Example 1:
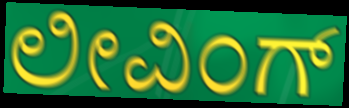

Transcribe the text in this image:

ಲೀವಿಂಗ್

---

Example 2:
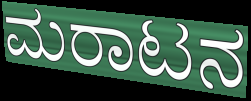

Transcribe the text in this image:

ಮರಾಟನ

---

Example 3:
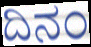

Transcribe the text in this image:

ದಿನಂ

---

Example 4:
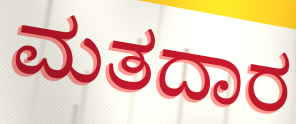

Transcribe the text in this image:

ಮತದಾರ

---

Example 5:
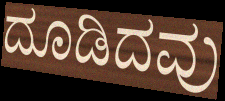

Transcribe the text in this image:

ದೂಡಿದವು